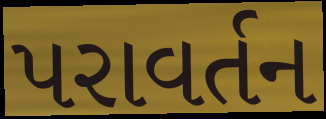
પરાવર્તન